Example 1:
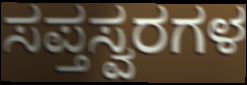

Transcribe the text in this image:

ಸಪ್ತಸ್ವರಗಳ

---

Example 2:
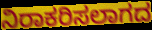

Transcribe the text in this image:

ನಿರಾಕರಿಸಲಾಗದ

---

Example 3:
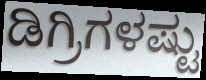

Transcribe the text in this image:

ಡಿಗ್ರಿಗಳಷ್ಟು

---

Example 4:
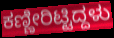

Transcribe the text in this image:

ಕಣ್ಣೀರಿಟ್ಟಿದ್ದಳು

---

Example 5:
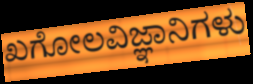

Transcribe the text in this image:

ಖಗೋಲವಿಜ್ಞಾನಿಗಳು